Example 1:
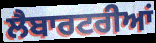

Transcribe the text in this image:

ਲੈਬਾਰਟਰੀਆਂ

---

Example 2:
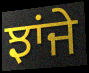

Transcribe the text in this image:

ਝਾਂਜੇ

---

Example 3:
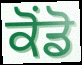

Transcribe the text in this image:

ਕੋਂਡੋ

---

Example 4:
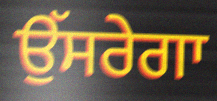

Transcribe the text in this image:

ਉੱਸਰੇਗਾ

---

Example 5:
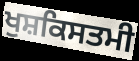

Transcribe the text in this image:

ਖੁਸ਼ਕਿਸਤਮੀ